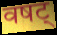
वषट्